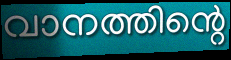
വാനത്തിന്റെ